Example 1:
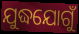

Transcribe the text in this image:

ଯୁଦ୍ଧଯୋଗୁଁ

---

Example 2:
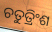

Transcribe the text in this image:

ଚତୁତ୍ରିଂଶ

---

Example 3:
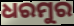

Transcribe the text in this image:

ଧରମୁର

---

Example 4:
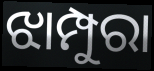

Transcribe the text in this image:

ଝାମ୍ପୁରା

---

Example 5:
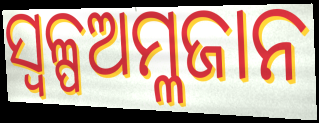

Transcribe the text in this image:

ସ୍ୱଳ୍ପଅମ୍ଳଜାନ